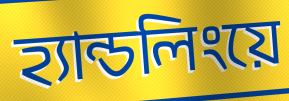
হ্যান্ডলিংয়ে